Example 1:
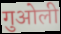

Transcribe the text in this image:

गुओली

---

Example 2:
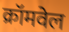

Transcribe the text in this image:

क्रॉमवेल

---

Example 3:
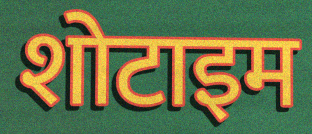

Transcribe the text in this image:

शोटाइम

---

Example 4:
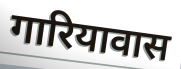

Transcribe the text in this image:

गारियावास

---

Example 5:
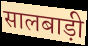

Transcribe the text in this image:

सालबाड़ी